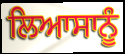
ਲਿਆਸਾਨੂੰ